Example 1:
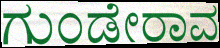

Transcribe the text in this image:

ಗುಂಡೇರಾವ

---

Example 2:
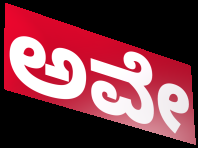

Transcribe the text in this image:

ಅವೇ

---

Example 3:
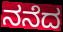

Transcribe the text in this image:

ನನೆದ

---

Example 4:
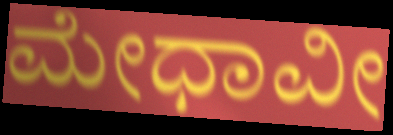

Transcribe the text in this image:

ಮೇಧಾವೀ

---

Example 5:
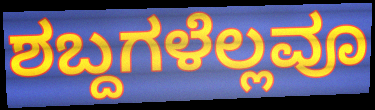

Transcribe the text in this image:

ಶಬ್ದಗಳೆಲ್ಲವೂ